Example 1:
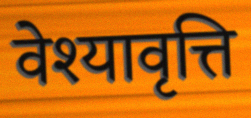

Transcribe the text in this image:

वेश्यावृत्ति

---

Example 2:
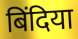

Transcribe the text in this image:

बिंदिया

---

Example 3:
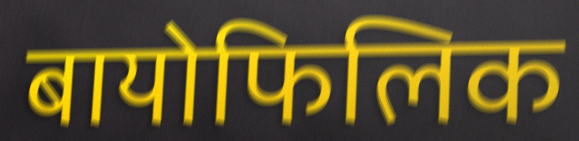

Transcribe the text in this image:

बायोफिलिक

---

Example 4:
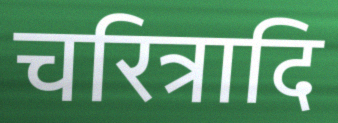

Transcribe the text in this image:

चरित्रादि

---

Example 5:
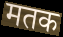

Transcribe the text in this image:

मतक